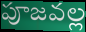
పూజవల్ల